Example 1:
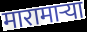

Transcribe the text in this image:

मारामाऱ्या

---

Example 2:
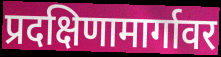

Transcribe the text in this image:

प्रदक्षिणामार्गावर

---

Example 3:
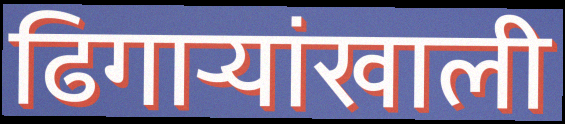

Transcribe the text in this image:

ढिगाऱ्यांखाली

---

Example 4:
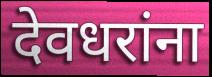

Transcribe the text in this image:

देवधरांना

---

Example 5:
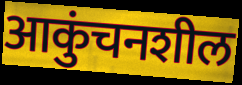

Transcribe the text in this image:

आकुंचनशील